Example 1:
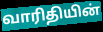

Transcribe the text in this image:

வாரிதியின்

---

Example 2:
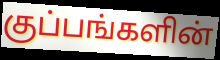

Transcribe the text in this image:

குப்பங்களின்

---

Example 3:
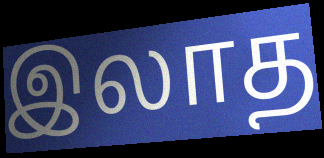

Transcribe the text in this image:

இலாத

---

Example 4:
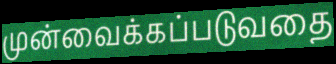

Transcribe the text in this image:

முன்வைக்கப்படுவதை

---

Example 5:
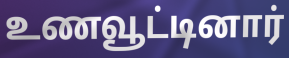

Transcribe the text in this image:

உணவூட்டினார்